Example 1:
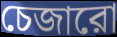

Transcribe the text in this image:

চেজারো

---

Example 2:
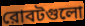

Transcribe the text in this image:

রোবটগুলো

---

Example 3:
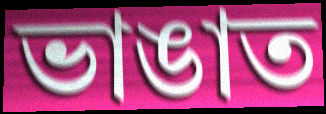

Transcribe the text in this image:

ভাঙাত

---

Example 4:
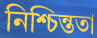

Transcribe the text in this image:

নিশ্চিন্ততা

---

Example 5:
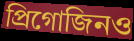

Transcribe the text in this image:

প্রিগোজিনও